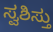
ಸ್ವಶಿಸ್ತು